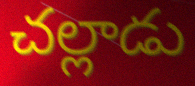
చల్లాడు